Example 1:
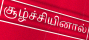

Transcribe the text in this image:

சூழ்ச்சியினால்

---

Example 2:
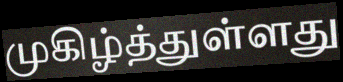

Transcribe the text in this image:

முகிழ்த்துள்ளது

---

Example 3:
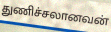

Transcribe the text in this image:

துணிச்சலானவன்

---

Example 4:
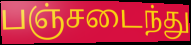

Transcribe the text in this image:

பஞ்சடைந்து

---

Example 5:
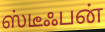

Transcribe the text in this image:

ஸ்டீஃபன்